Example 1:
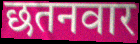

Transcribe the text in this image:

छतनवार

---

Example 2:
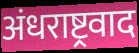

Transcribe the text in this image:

अंधराष्ट्रवाद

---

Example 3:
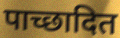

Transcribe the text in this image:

पाच्छादित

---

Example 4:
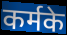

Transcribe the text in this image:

कर्मके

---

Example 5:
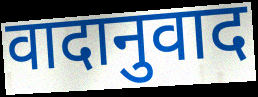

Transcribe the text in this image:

वादानुवाद